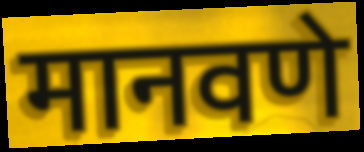
मानवणे